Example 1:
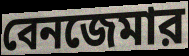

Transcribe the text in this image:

বেনজেমার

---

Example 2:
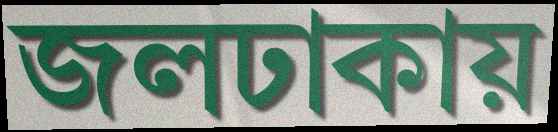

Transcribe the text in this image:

জলঢাকায়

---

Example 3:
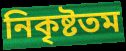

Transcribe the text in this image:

নিকৃষ্টতম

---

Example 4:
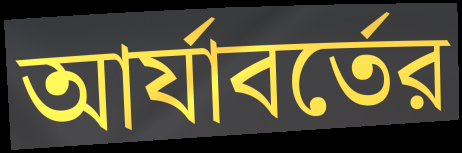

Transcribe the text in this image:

আর্যাবর্তের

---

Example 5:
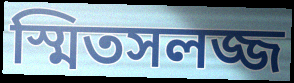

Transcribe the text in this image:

স্মিতসলজ্জ